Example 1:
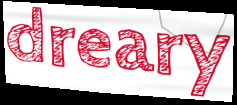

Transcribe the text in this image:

dreary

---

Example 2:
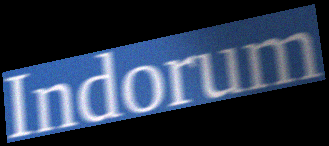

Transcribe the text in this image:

Indorum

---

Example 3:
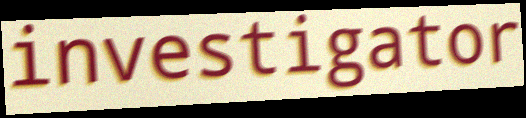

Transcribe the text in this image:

investigator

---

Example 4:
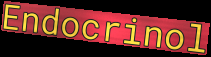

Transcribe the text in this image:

Endocrinol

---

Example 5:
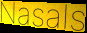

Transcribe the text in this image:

Nasals